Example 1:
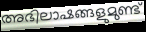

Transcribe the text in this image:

അഭിലാഷങ്ങളുമുണ്ട്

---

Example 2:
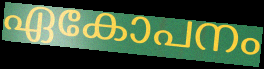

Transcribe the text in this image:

ഏകോപനം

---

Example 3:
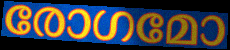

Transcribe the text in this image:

രോഗമോ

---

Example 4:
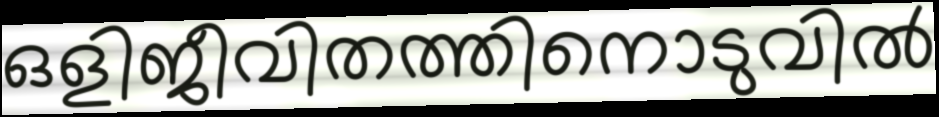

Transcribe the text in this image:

ഒളിജീവിതത്തിനൊടുവിൽ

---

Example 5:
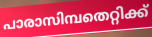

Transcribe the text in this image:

പാരാസിമ്പതെറ്റിക്ക്